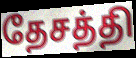
தேசத்தி